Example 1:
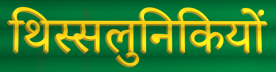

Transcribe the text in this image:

थिस्सलुनिकियों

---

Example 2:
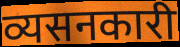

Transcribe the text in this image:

व्यसनकारी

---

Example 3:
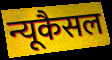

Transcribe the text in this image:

न्यूकैसल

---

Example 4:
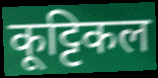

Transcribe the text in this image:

कूट्टिकल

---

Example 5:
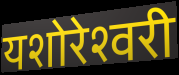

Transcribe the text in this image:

यशोरेश्वरी